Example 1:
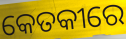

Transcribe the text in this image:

କେତକୀରେ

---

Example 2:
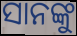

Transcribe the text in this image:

ସାନଙ୍କୁ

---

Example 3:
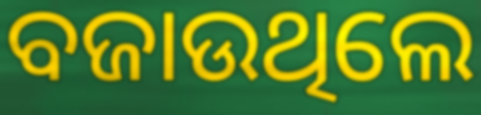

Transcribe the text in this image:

ବଜାଉଥିଲେ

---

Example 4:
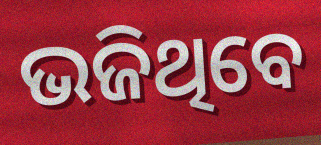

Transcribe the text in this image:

ଭଜିଥିବେ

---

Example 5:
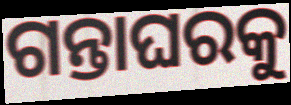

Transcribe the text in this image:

ଗନ୍ତାଘରକୁ